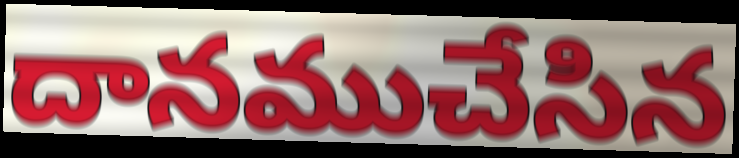
దానముచేసిన